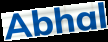
Abhal